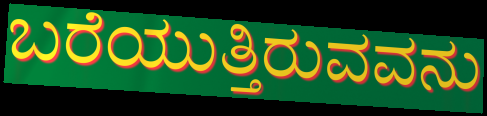
ಬರೆಯುತ್ತಿರುವವನು